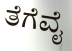
ತೆಗೆವೈ